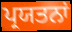
ਪ੍ਰਯਤਨਾਂ